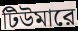
টিউমারে